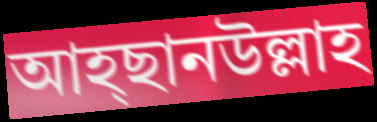
আহ্ছানউল্লাহ